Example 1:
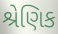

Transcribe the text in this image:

શ્રેણિક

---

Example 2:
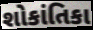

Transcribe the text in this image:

શોકાંતિકા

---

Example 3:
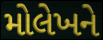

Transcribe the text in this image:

મોલેખને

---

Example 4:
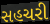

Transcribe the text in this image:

સહચરી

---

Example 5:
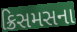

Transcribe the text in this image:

ક્રિસમસના